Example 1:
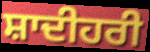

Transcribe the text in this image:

ਸ਼ਾਦੀਹਰੀ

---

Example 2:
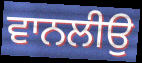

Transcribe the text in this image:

ਵਾਨਲੀਉ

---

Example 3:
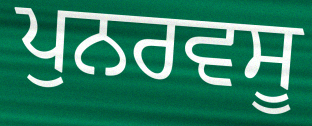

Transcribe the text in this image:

ਪੁਨਰਵਸੂ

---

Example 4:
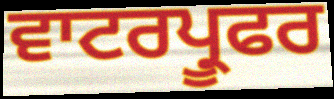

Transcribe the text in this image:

ਵਾਟਰਪ੍ਰੂਫਰ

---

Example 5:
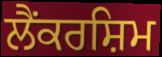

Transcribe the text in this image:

ਲੈਂਕਰਸ਼ਿਮ